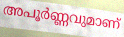
അപൂർണ്ണവുമാണ്